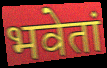
भवेतां